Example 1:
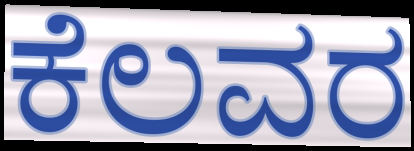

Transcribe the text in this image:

ಕೆಲವರ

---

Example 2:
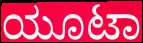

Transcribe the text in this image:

ಯೂಟಾ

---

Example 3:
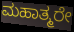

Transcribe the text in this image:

ಮಹಾತ್ಮರೇ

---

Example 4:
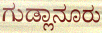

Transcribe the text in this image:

ಗುಡ್ಲಾನೂರು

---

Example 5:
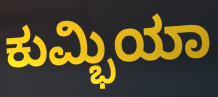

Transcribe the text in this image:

ಕುಮ್ಭಿಯಾ